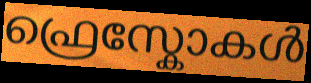
ഫ്രെസ്കോകൾ